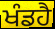
ਖੰਡਹੈ